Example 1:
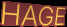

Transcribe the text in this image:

HAGE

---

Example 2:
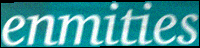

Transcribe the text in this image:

enmities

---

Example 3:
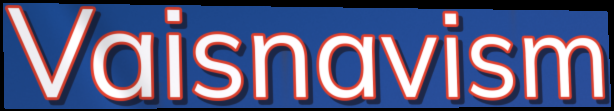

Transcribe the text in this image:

Vaisnavism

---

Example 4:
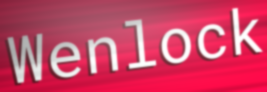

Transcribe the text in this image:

Wenlock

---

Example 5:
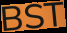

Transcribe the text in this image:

BST